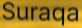
Suraqa